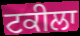
ਟਕੀਲਾ